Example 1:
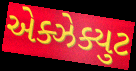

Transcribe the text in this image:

એક્ઝેક્યુટ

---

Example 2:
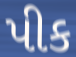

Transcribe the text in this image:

પીક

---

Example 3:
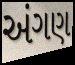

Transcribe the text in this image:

અંગણ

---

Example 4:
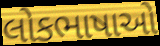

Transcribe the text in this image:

લોકભાષાઓ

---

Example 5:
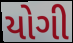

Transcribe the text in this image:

યોગી